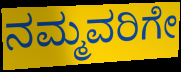
ನಮ್ಮವರಿಗೇ